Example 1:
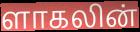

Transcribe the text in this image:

ளாகலின்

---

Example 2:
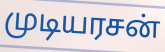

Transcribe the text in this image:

முடியரசன்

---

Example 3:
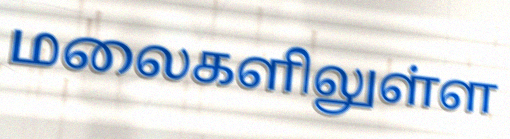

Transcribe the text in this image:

மலைகளிலுள்ள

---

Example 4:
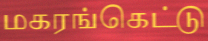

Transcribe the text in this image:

மகரங்கெட்டு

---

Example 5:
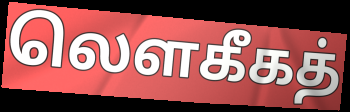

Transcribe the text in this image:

லௌகீகத்